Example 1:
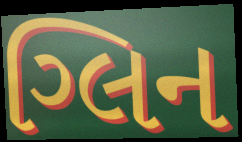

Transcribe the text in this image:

ગ્લિન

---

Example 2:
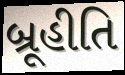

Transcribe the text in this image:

બ્રૂહીતિ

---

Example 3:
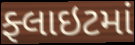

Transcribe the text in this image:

ફ્લાઇટમાં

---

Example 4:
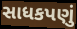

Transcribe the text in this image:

સાધકપણું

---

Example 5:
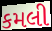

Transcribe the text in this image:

કમલી